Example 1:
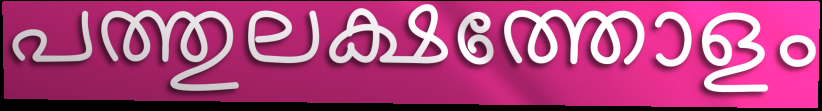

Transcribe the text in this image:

പത്തുലക്ഷത്തോളം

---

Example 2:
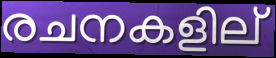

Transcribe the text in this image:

രചനകളില്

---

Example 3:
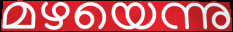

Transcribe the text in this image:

മഴയെന്നു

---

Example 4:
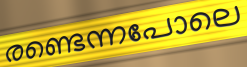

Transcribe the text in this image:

രണ്ടെന്നപോലെ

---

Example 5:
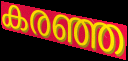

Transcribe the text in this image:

കരഞ്ഞ